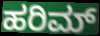
ಹರಿಮ್